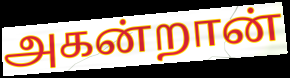
அகன்றான்